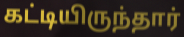
கட்டியிருந்தார்